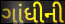
ગાંધીની